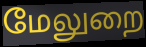
மேலுறை